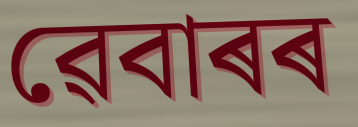
ৱেবাৰৰ